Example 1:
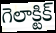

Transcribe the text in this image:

గెలాక్టిక్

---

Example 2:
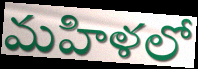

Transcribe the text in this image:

మహిళలో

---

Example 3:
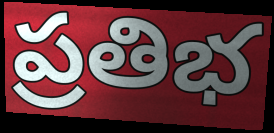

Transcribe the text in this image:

ప్రతిభ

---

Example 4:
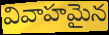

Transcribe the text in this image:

వివాహమైన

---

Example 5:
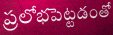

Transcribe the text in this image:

ప్రలోభపెట్టడంతో